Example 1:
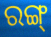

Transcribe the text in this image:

ରଙ୍ଗ୍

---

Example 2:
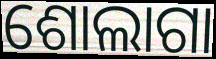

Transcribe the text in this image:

ଶୋଲାଗା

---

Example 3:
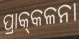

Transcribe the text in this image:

ପ୍ରାକ୍‌କଳନା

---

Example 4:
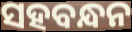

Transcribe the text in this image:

ସହବନ୍ଧନ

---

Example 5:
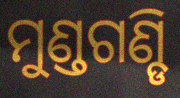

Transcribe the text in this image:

ମୁଣ୍ଡଗଣ୍ଡି